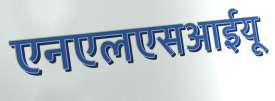
एनएलएसआईयू